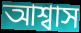
আশ্বাস